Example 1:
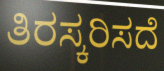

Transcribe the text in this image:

ತಿರಸ್ಕರಿಸದೆ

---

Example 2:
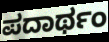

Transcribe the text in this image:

ಪದಾರ್ಥಂ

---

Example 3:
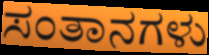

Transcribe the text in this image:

ಸಂತಾನಗಳು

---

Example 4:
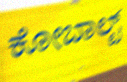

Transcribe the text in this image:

ಕೋಬಾಲ್ಟ್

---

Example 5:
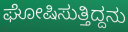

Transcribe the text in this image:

ಘೋಷಿಸುತ್ತಿದ್ದನು